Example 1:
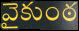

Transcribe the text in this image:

వైకుంఠ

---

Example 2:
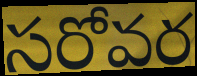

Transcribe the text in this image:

సరోవర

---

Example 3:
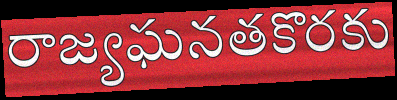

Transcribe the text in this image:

రాజ్యఘనతకొరకు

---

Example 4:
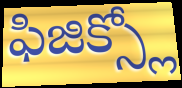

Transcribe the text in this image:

ఫిజిక్స్లో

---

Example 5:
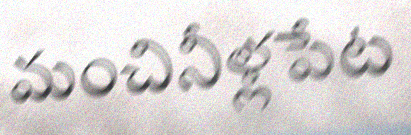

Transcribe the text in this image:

మంచినీళ్లపేట